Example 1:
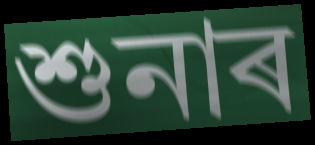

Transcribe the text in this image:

শুনাৰ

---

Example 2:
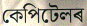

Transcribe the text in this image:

কেপিটেলৰ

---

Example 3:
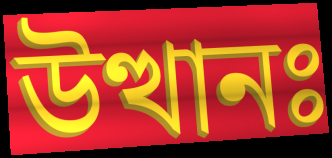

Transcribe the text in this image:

উত্থানঃ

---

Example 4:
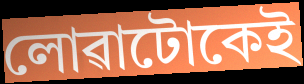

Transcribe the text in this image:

লোৱাটোকেই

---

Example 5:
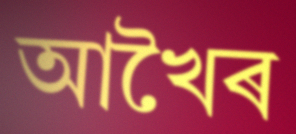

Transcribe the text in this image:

আখৈৰ